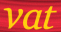
vat